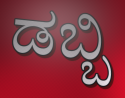
ಡಬ್ಬಿ